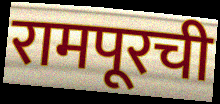
रामपूरची